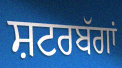
ਸ਼ਟਰਬੱਗਾਂ